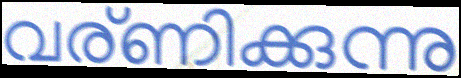
വര്ണിക്കുന്നു